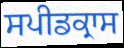
ਸਪੀਡਕ੍ਰਾਸ